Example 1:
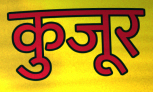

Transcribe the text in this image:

कुजूर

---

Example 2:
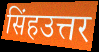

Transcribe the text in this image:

सिंहउत्तर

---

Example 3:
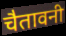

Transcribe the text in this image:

चैतावनी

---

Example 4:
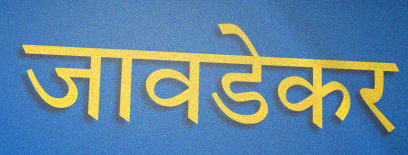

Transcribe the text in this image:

जावडेकर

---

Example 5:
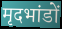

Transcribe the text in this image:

मृदभांडों